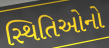
સ્થિતિઓનો